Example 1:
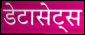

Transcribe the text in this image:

डेटासेट्स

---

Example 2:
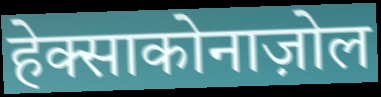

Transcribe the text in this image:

हेक्साकोनाज़ोल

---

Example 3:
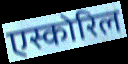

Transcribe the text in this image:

एस्कोरिल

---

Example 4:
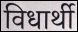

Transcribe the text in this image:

विधार्थी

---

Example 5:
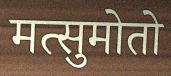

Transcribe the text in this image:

मत्सुमोतो